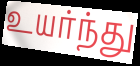
உயர்ந்து